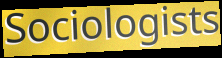
Sociologists